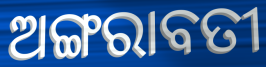
ଅଙ୍ଗରାବତୀ